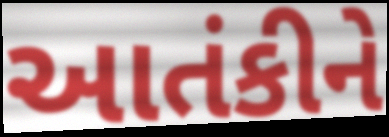
આતંકીને